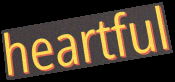
heartful